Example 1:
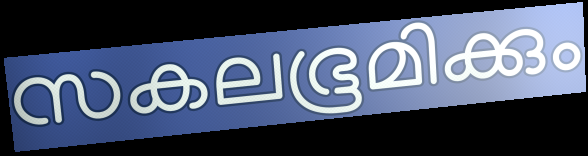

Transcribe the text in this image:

സകലഭൂമിക്കും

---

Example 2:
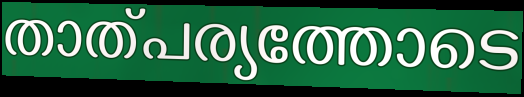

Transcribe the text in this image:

താത്പര്യത്തോടെ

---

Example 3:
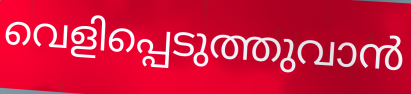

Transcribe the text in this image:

വെളിപ്പെടുത്തുവാൻ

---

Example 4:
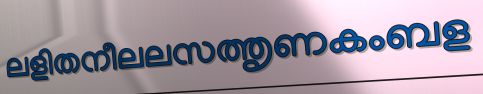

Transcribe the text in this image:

ലളിതനീലലസത്തൃണകംബള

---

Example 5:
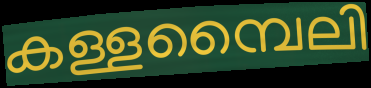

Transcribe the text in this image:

കള്ളമ്പൈലി